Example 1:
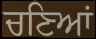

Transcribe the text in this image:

ਚਣਿਆਂ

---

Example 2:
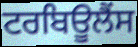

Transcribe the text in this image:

ਟਰਬਿਊਲੈਂਸ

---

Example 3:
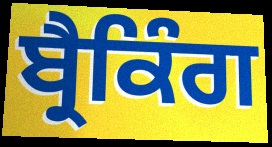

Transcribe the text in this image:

ਬ੍ਰੈਕਿੰਗ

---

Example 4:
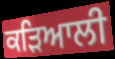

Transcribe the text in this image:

ਕੜਿਆਲੀ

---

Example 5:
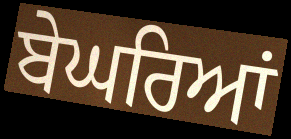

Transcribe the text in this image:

ਬੇਘਰਿਆਂ